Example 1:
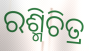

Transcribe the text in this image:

ରଶ୍ମିଚିତ୍ର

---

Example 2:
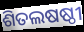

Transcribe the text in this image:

ଶିତଲଷଷ୍ଠୀ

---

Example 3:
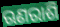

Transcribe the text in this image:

ଋଣରାଶି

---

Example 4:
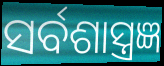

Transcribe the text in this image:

ସର୍ବଶାସ୍ତ୍ରଜ୍ଞ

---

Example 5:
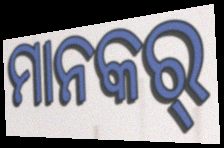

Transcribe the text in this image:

ମାନକର୍